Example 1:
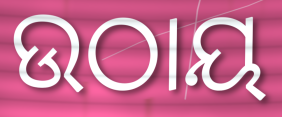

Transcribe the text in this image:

ଉଠାୟ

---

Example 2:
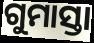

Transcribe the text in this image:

ଗୁମାସ୍ତା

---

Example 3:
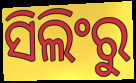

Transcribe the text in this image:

ସିଲିଂରୁ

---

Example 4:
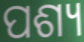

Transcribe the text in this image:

ପଶ୍ୟ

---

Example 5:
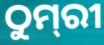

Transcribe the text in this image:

ଠୁମ୍‌ରୀ